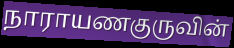
நாராயணகுருவின்